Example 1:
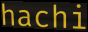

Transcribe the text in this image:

hachi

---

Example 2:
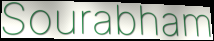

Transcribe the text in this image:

Sourabham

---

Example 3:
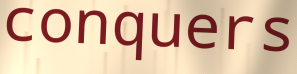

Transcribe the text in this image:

conquers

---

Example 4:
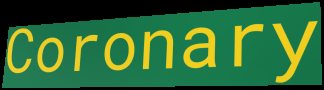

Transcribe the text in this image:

Coronary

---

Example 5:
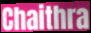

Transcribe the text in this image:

Chaithra